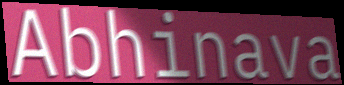
Abhinava